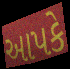
આપકે